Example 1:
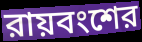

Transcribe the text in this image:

রায়বংশের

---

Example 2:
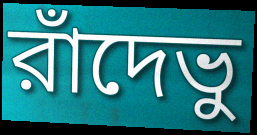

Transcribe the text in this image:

রাঁদেভু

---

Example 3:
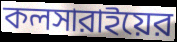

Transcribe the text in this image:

কলসারাইয়ের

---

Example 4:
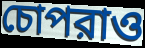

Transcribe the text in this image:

চোপরাও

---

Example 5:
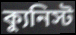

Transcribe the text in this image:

ক্যুনিস্ট